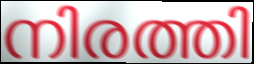
നിരത്തി